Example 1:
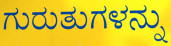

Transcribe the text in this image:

ಗುರುತುಗಳನ್ನು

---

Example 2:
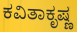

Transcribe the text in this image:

ಕವಿತಾಕೃಷ್ಣ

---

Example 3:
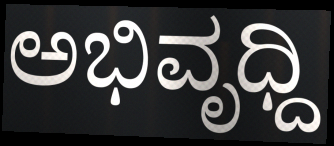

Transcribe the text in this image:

ಅಭಿವೃಧ್ದಿ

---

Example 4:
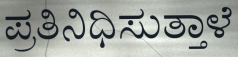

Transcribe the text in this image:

ಪ್ರತಿನಿಧಿಸುತ್ತಾಳೆ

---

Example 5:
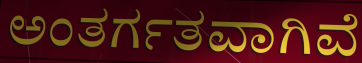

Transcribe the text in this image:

ಅಂತರ್ಗತವಾಗಿವೆ